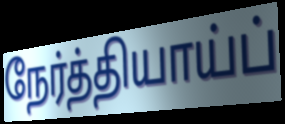
நேர்த்தியாய்ப்